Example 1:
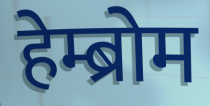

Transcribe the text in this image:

हेम्ब्रोम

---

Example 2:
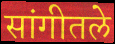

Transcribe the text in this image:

सांगीतले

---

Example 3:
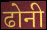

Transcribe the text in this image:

ढोनी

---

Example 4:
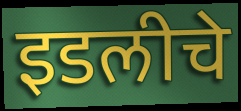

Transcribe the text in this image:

इडलीचे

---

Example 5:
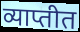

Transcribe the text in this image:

व्याप्तीत